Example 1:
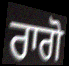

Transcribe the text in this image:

ਰਾਗੋ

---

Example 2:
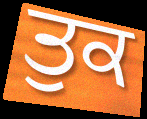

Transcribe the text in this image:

ਤੁਕ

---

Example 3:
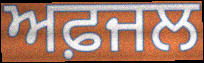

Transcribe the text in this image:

ਅਫ਼ਜਲ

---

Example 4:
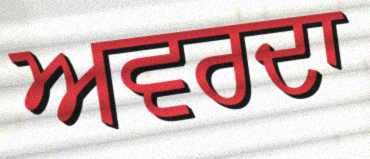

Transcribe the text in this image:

ਅਵਰਦਾ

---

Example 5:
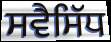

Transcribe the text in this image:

ਸਵੈਸਿੱਧ